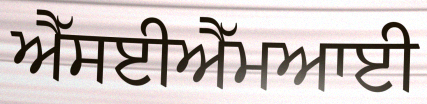
ਐੱਸਈਐੱਮਆਈ